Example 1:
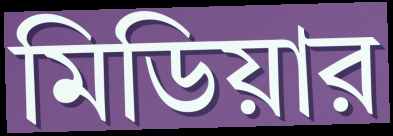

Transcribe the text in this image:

মিডিয়ার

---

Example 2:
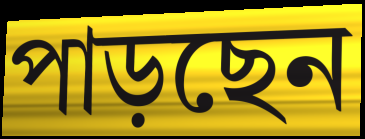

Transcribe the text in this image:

পাড়ছেন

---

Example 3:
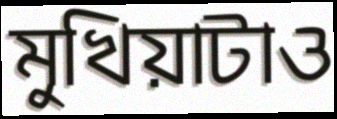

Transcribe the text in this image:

মুখিয়াটাও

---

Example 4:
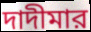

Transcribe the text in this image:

দাদীমার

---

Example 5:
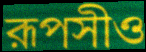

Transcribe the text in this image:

রূপসীও